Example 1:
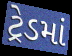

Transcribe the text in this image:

ટ્રેડમાં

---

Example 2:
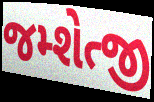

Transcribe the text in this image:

જમ્શેત્જી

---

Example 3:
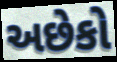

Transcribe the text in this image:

અછેકો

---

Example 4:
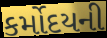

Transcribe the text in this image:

કર્મોદયની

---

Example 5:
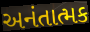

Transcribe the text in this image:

અનંતાત્મક